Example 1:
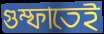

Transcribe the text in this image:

গুম্ফাতেই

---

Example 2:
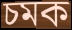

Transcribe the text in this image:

চমক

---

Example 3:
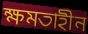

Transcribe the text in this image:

ক্ষমতাহীন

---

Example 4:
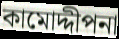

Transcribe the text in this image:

কামোদ্দীপনা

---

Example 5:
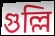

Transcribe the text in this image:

গুল্লি